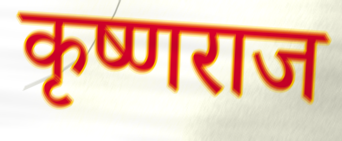
कृष्णराज